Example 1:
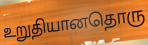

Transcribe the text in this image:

உறுதியானதொரு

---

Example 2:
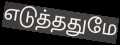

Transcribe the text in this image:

எடுத்ததுமே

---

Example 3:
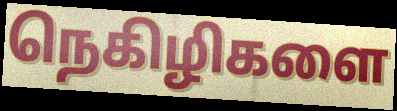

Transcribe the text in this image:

நெகிழிகளை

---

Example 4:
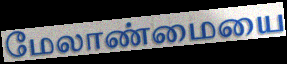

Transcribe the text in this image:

மேலாண்மையை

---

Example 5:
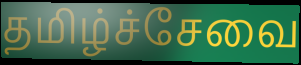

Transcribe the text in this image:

தமிழ்ச்சேவை